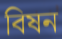
বিষন